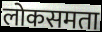
लोकसमता